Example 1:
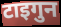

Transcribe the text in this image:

टाइगुन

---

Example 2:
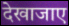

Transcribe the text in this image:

देखाजाए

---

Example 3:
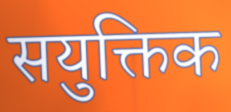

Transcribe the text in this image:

सयुक्तिक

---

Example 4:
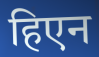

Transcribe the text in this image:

हिएन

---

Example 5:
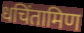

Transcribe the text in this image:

धचिंतामिण